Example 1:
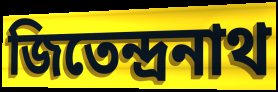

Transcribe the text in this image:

জিতেন্দ্রনাথ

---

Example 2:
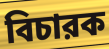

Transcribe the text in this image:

বিচারক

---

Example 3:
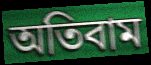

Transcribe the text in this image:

অতিবাম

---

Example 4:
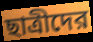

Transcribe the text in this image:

ছাত্রীদের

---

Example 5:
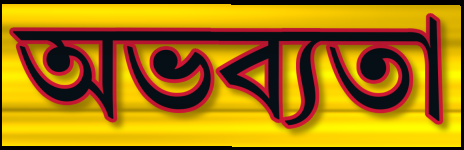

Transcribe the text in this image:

অভব্যতা